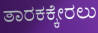
ತಾರಕಕ್ಕೇರಲು